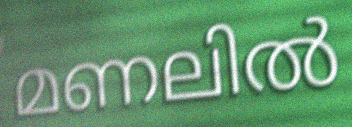
മണലിൽ